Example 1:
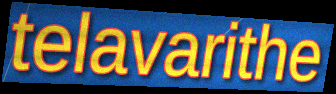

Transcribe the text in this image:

telavarithe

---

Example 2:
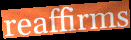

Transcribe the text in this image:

reaffirms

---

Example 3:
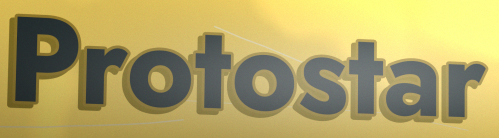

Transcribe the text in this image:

Protostar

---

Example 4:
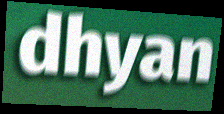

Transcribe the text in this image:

dhyan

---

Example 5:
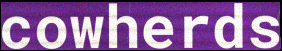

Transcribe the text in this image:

cowherds